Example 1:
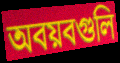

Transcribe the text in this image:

অবয়বগুলি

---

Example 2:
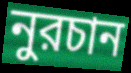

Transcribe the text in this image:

নুরচান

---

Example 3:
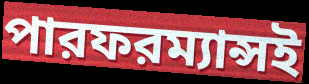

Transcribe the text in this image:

পারফরম্যান্সই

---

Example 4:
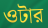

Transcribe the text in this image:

ওটার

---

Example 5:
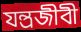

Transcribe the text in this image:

যন্ত্রজীবী